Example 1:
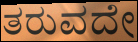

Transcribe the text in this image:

ತರುವದೇ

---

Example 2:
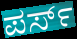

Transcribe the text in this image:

ಪರ್ಸ್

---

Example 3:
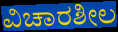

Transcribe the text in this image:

ವಿಚಾರಶೀಲ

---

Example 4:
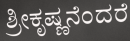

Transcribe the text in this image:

ಶ್ರೀಕೃಷ್ಣನೆಂದರೆ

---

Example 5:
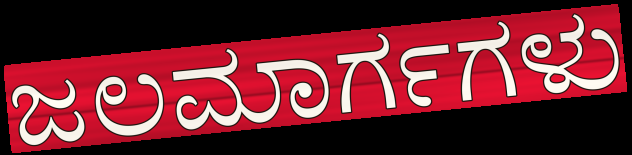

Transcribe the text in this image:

ಜಲಮಾರ್ಗಗಳು